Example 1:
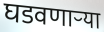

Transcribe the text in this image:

घडवणाऱ्या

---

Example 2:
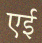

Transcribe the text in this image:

एई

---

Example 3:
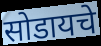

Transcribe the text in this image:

सोडायचे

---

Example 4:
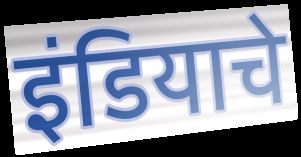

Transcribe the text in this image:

इंडियाचे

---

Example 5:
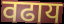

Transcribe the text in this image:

वढाय